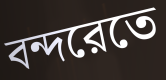
বন্দরেতে